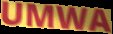
UMWA